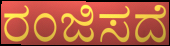
ರಂಜಿಸದೆ